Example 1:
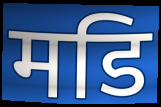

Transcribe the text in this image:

मडि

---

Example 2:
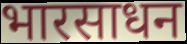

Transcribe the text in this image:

भारसाधन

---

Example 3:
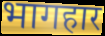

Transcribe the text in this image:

भागहार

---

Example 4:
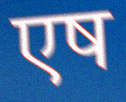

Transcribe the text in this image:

एष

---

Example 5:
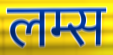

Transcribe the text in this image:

लम्स